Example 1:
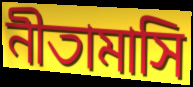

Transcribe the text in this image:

নীতামাসি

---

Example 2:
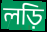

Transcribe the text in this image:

লড়ি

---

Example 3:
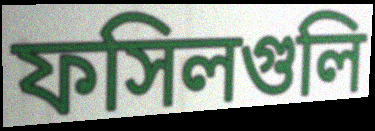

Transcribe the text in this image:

ফসিলগুলি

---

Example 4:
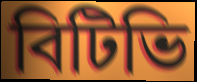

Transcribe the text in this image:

বিটিভি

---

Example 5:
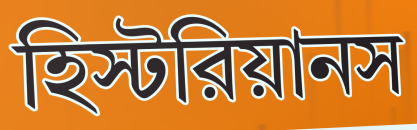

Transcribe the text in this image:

হিস্টরিয়ানস